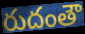
రుదంతౌ